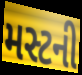
મસ્ટની